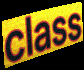
class